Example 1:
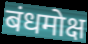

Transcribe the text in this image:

बंधमोक्ष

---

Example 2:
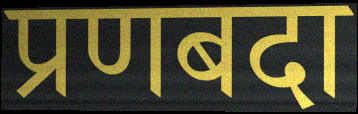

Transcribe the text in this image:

प्रणबदा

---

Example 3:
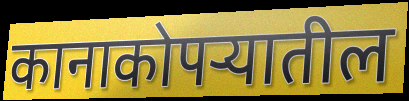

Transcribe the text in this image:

कानाकोपऱ्यातील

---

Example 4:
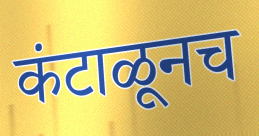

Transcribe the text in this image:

कंटाळूनच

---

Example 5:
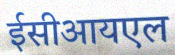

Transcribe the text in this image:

ईसीआयएल